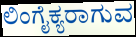
ಲಿಂಗೈಕ್ಯರಾಗುವ